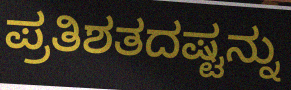
ಪ್ರತಿಶತದಷ್ಟನ್ನು